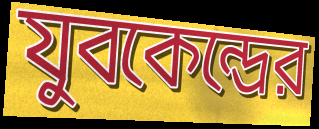
যুবকেন্দ্রের